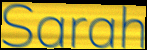
Sarah